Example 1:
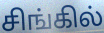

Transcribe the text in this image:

சிங்கில்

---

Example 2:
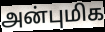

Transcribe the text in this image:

அன்புமிக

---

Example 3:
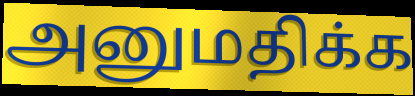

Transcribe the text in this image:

அனுமதிக்க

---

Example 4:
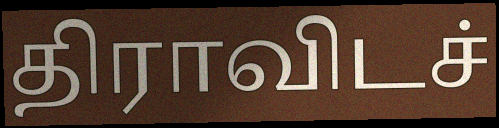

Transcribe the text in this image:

திராவிடச்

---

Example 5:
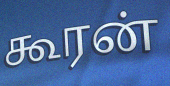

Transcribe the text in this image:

கூரன்